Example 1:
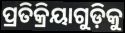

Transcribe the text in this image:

ପ୍ରତିକ୍ରିୟାଗୁଡ଼ିକୁ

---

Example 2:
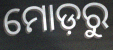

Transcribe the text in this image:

ମୋଡ଼ରୁ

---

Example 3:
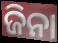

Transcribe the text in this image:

ଜିନା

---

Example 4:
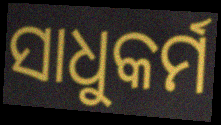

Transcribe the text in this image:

ସାଧୁକର୍ମ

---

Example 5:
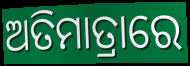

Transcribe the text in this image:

ଅତିମାତ୍ରାରେ